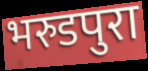
भरुडपुरा